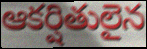
ఆకర్షితులైన